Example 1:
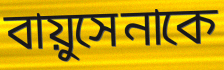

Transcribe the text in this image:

বায়ুসেনাকে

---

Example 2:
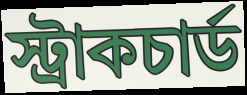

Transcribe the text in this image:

স্ট্রাকচার্ড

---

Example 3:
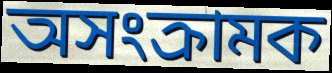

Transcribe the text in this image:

অসংক্রামক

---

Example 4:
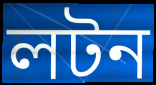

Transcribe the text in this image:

লটন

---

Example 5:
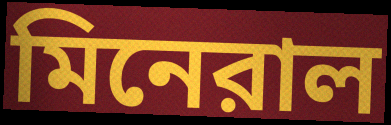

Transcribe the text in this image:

মিনেরাল